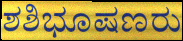
ಶಶಿಭೂಷಣರು